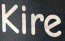
Kire